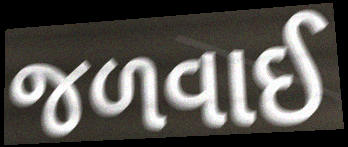
જળવાઈ